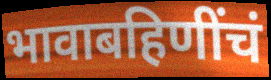
भावाबहिणींचं